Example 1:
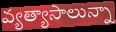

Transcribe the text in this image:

వ్యత్యాసాలున్నా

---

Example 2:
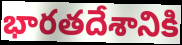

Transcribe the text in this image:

భారతదేశానికి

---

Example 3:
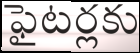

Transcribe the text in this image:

ఫైటర్లకు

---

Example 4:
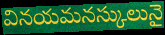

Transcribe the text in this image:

వినయమనస్కులునై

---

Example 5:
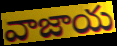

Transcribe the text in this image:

వాజాయ